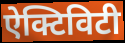
ऐक्टिविटी